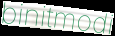
binitmodi